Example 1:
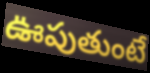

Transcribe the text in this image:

ఊపుతుంటే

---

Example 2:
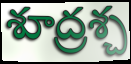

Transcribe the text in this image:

శూద్రశ్చ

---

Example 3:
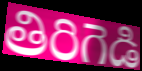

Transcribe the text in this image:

తిరిగెడి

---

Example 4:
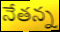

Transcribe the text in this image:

నేతన్న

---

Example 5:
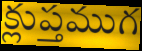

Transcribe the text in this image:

క్లుప్తముగ